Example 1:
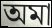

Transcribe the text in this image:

অমা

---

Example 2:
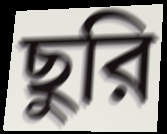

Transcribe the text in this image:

ছুরি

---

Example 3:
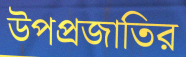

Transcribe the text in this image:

উপপ্রজাতির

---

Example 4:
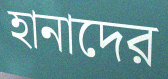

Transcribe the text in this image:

হানাদের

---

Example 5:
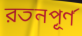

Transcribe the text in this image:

রতনপূর্ণ